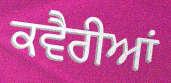
ਕਵੈਰੀਆਂ